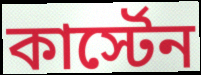
কার্স্টেন